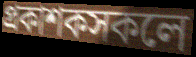
প্ৰকাশকসকলে